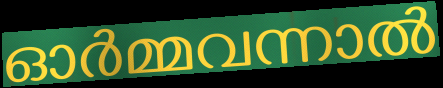
ഓർമ്മവന്നാൽ